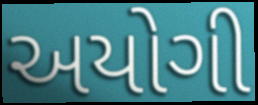
અયોગી